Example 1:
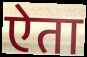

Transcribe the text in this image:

ऐता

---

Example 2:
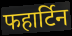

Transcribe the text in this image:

फहार्टिन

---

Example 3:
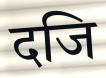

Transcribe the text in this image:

दजि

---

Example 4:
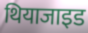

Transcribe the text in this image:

थियाजाइड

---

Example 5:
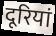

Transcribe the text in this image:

दूरियां